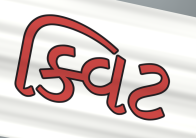
ક્વિટ